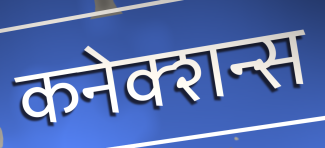
कनेक्शन्स